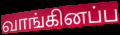
வாங்கினப்ப